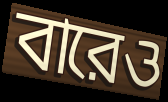
বারেও